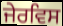
ਜੇਰਵਿਸ